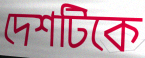
দেশটিকে